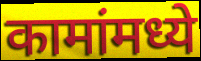
कामांमध्ये